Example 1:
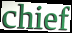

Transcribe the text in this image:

chief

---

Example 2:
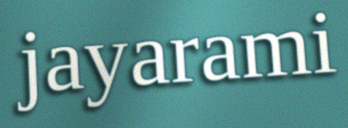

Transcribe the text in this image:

jayarami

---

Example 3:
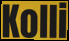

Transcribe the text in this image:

Kolli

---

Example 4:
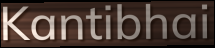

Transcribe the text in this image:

Kantibhai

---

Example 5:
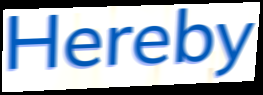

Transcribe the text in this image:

Hereby